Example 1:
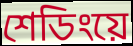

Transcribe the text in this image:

শেডিংয়ে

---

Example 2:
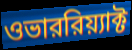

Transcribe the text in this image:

ওভাররিয়্যাক্ট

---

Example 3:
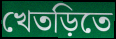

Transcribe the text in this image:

খেতড়িতে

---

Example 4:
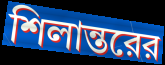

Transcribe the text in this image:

শিলান্তরের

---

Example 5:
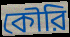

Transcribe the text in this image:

কৌরি